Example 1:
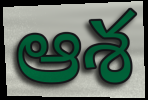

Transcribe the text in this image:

ఆశ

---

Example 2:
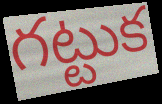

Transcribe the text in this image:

గట్టుక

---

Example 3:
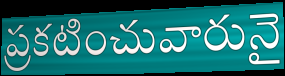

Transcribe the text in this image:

ప్రకటించువారునై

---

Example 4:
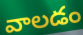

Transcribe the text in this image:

వాలడం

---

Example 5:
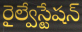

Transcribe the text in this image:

రైల్వేస్టేషన్